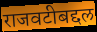
राजवटीबद्दल